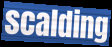
scalding